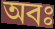
অবঃ